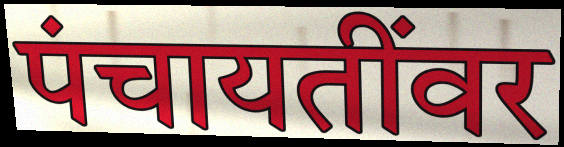
पंचायतींवर